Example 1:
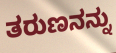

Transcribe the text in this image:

ತರುಣನನ್ನು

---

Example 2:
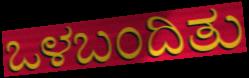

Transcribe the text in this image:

ಒಳಬಂದಿತು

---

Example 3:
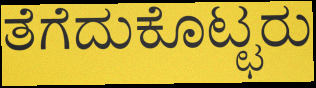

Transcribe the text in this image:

ತೆಗೆದುಕೊಟ್ಟರು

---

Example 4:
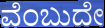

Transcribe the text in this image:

ವೆಂಬುದೇ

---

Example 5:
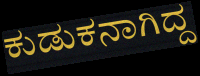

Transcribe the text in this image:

ಕುಡುಕನಾಗಿದ್ದ